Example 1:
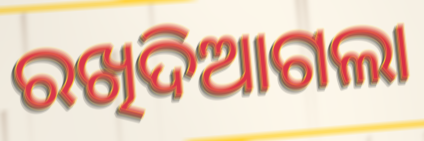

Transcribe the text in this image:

ରଖିଦିଆଗଲା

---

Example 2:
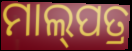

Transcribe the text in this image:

ମାଲ୍‌ପତ୍ର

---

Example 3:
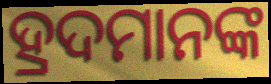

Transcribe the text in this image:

ହ୍ରଦମାନଙ୍କ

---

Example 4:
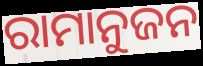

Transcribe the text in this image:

ରାମାନୁଜନ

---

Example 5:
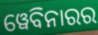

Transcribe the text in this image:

ୱେବିନାରର